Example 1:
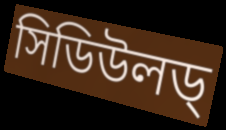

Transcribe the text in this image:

সিডিউলড্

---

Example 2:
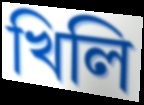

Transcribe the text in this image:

খিলি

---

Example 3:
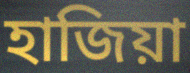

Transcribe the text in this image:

হাজিয়া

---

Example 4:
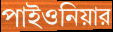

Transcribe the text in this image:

পাইওনিয়ার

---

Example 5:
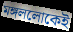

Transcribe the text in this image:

মঙ্গললোকেই